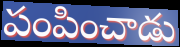
పంపించాడు